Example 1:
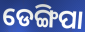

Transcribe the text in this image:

ଡେଙ୍ଗିପା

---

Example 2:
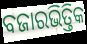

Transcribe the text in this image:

ବଜାରଭିତ୍ତିକ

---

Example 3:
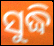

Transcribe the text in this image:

ସୁଦ୍ଧି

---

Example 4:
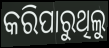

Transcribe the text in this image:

କରିପାରୁଥିଲୁ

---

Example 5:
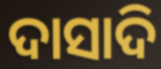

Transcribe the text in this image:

ଦାସାଦି